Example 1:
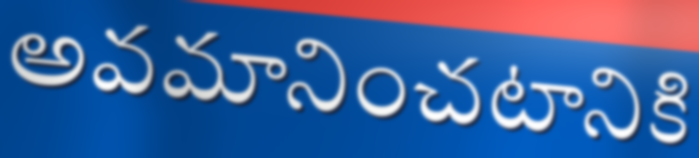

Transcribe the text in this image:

అవమానించటానికి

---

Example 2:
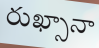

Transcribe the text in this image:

రుఖ్సానా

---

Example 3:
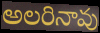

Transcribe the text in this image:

అలరినావు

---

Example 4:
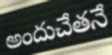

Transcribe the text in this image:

అందుచేతనే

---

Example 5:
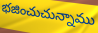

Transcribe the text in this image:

భజించుచున్నాము